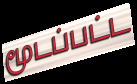
மூடப்பட்ட